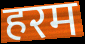
हरम